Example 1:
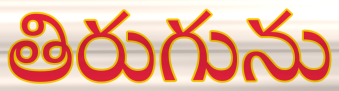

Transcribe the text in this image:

తిరుగును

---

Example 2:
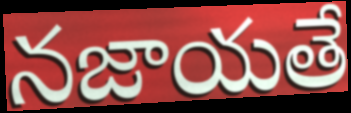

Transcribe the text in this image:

నజాయతే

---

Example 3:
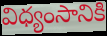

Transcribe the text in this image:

విధ్యంసానికి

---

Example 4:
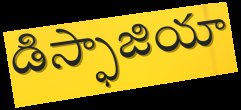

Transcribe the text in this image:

డిస్ఫాజియా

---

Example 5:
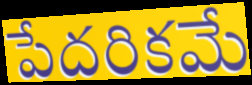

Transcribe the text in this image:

పేదరికమే